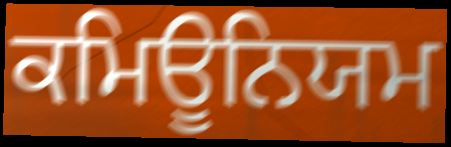
ਕਮਿਊਨਿਯਮ